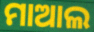
ମାଆଲ